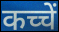
कच्चें